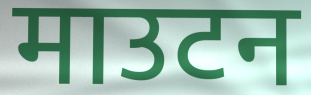
माउटन